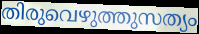
തിരുവെഴുത്തുസത്യം